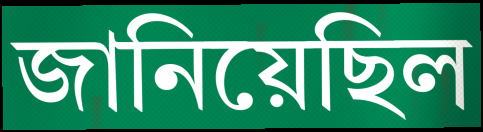
জানিয়েছিল